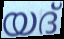
യദ്